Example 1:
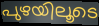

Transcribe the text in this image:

പുഴയിലൂടെ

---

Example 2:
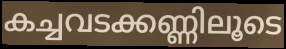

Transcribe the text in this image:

കച്ചവടക്കണ്ണിലൂടെ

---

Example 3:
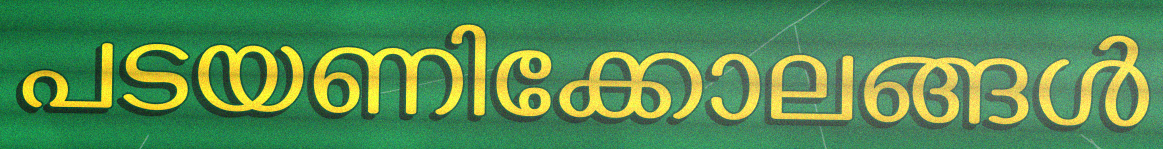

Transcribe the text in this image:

പടയണിക്കോലങ്ങൾ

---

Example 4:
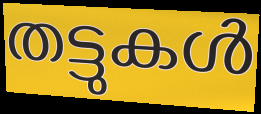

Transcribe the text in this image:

തട്ടുകൾ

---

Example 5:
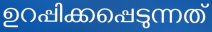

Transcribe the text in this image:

ഉറപ്പിക്കപ്പെടുന്നത്